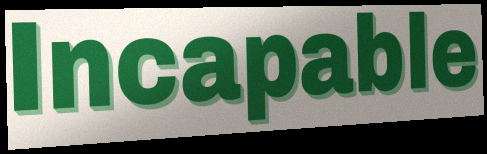
Incapable